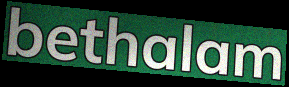
bethalam